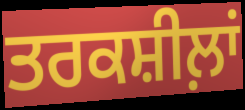
ਤਰਕਸ਼ੀਲ਼ਾਂ